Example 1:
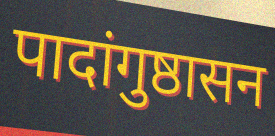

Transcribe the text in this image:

पादांगुष्ठासन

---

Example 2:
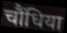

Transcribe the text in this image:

चौंधिया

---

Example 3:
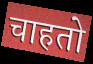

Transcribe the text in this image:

चाहतो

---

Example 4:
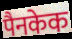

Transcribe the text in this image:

पैनकेक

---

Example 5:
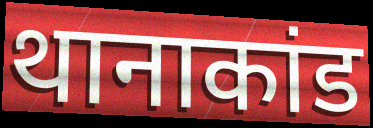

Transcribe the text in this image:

थानाकांड